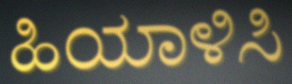
ಹಿಯಾಳಿಸಿ